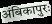
अंबिकापुरः